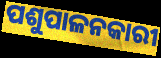
ପଶୁପାଳନକାରୀ